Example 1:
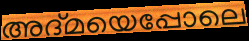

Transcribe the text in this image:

അദ്മയെപ്പോലെ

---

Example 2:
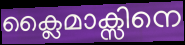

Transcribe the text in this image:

ക്ലൈമാക്സിനെ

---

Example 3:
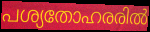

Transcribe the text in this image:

പശ്യതോഹരരിൽ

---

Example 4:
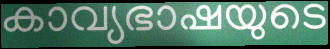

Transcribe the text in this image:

കാവ്യഭാഷയുടെ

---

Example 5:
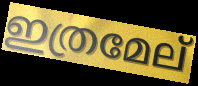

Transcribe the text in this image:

ഇത്രമേല്